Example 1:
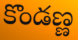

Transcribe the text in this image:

కొండణ్ణ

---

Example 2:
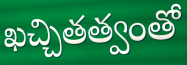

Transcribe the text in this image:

ఖచ్చితత్వంతో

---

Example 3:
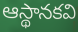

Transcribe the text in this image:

ఆస్థానకవి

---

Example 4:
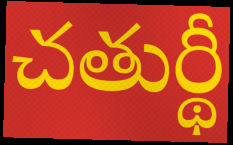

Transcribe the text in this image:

చతుర్థీ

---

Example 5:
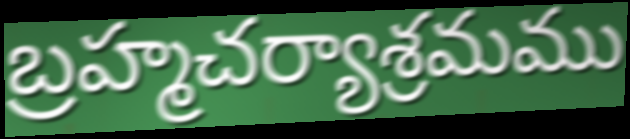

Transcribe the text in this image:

బ్రహ్మచర్యాశ్రమము